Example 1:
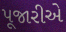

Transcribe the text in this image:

પૂજારીએ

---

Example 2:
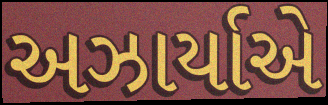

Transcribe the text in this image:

અઝાર્યાએ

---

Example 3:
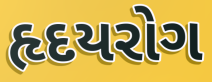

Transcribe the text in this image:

હૃદયરોગ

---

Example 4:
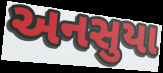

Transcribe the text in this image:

અનસુયા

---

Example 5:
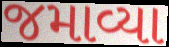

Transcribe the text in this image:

જમાવ્યા